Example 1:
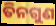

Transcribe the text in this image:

ତିନଗୁଣ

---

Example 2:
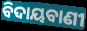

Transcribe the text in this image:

ବିଦାୟବାଣୀ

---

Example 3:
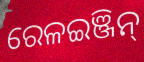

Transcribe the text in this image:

ରେଳଇଞ୍ଜିନ୍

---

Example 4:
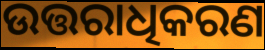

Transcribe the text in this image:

ଉତ୍ତରାଧିକରଣ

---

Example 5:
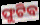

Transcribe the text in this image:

ଫୁଟିବ